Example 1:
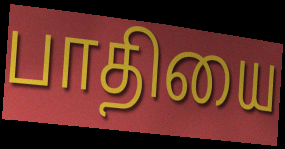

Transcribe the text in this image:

பாதியை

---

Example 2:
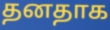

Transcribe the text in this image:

தனதாக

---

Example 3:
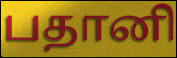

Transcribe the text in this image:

பதானி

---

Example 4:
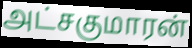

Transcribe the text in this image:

அட்சகுமாரன்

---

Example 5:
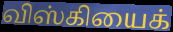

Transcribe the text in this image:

விஸ்கியைக்